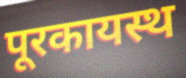
पूरकायस्थ